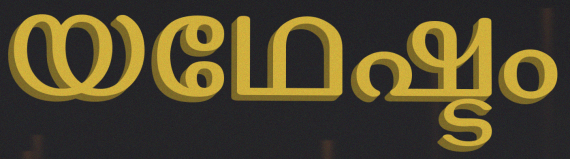
യഥേഷ്ടം